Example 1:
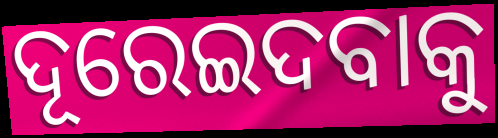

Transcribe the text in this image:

ଦୂରେଇଦବାକୁ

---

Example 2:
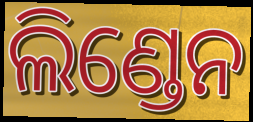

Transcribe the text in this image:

ଲିଣ୍ଡେନ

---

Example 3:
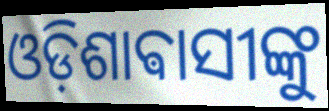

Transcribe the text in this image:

ଓଡ଼ିଶାଵାସୀଙ୍କୁ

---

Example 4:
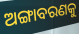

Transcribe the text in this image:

ଅଙ୍ଗାବରଣକୁ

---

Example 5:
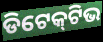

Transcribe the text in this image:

ଡିଟେକ୍‍ଟିଭ